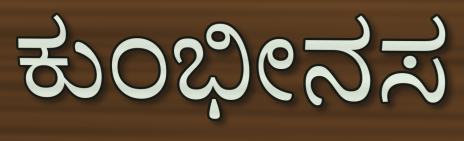
ಕುಂಭೀನಸ